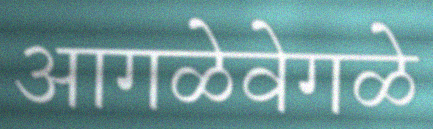
आगळेवेगळे